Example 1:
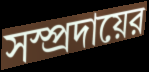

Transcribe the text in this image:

সস্প্রদায়ের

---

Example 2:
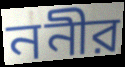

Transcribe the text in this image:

ননীর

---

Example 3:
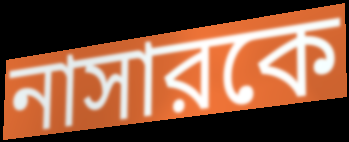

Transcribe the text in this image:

নাসারকে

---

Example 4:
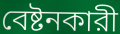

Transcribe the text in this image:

বেষ্টনকারী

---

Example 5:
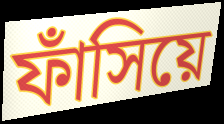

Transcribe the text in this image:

ফাঁসিয়ে